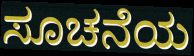
ಸೂಚನೆಯ